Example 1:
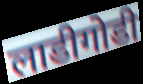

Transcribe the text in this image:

लाडीगोडी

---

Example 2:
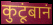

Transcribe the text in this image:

कुटूंबानं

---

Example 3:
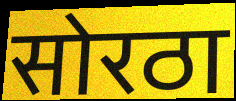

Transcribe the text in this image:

सोरठा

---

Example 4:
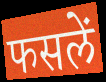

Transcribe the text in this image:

फसलें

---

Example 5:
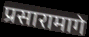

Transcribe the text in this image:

प्रसारामागे